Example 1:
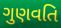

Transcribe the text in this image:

ગુણવતિ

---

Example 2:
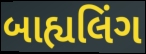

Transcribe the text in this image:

બાહ્યલિંગ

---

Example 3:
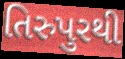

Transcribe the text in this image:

તિરુપુરથી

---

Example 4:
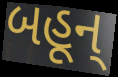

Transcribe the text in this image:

બહૂન્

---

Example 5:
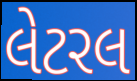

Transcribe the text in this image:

લેટરલ